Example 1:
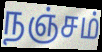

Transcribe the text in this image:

நஞ்சம்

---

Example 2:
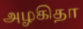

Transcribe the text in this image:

அழகிதா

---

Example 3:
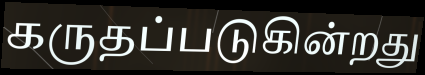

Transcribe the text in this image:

கருதப்படுகின்றது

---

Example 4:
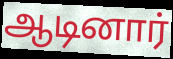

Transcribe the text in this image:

ஆடினார்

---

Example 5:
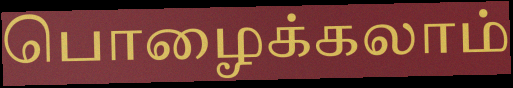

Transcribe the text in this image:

பொழைக்கலாம்